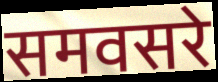
समवसरे